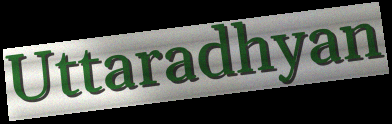
Uttaradhyan